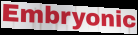
Embryonic